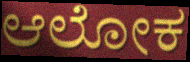
ಆಲೋಕ